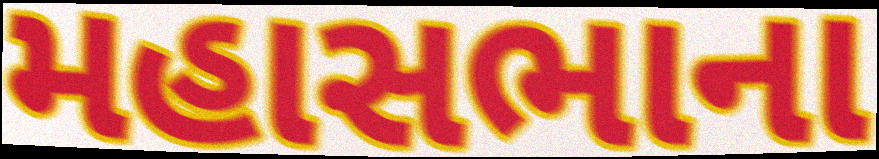
મહાસભાના